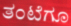
ತಂಟೆಗೂ